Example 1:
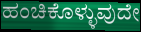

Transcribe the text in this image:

ಹಂಚಿಕೊಳ್ಳುವುದೇ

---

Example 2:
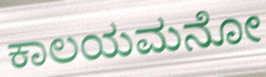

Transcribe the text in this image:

ಕಾಲಯಮನೋ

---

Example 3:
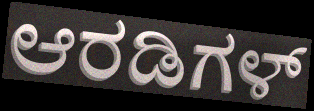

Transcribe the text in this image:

ಆರಡಿಗಳ್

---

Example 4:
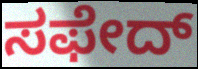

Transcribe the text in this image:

ಸಫೇದ್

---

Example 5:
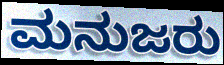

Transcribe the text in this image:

ಮನುಜರು